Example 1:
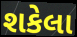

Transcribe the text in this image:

શકેલા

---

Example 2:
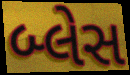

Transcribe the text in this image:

બ્લેસ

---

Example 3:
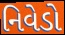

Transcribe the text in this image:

નિવેડો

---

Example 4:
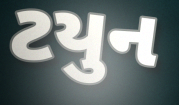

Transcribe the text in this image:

ટયુન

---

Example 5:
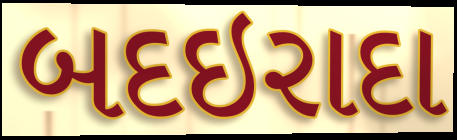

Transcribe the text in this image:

બદઇરાદા